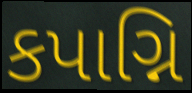
કપાગ્નિ